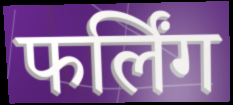
फर्लिंग